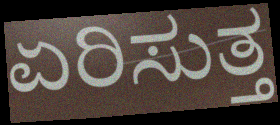
ಏರಿಸುತ್ತ